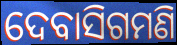
ଦେବାସିଗମଣି